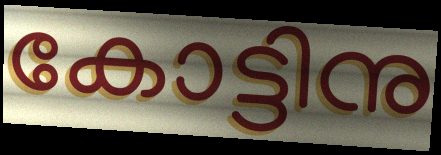
കോട്ടിനു